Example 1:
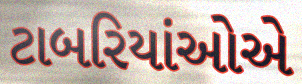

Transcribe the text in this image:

ટાબરિયાંઓએ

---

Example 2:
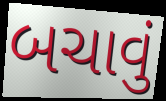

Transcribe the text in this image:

બચાવું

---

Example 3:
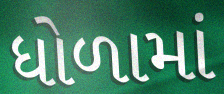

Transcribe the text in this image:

ધોળામાં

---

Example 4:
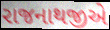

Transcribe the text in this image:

રાજનાથજીએ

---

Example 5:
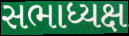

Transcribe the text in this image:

સભાધ્યક્ષ